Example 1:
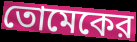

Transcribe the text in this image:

তোমেকের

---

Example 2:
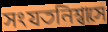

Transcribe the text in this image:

সংযতনিশ্বাসে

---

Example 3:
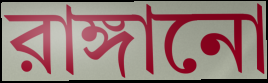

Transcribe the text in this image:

রাঙ্গানো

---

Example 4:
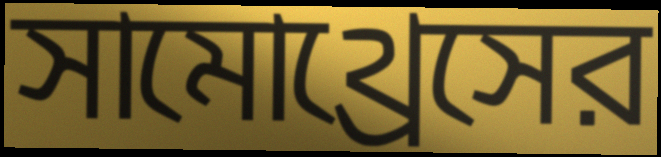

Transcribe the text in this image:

সামোথ্রেসের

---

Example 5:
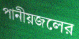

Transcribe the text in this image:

পানীয়জলের